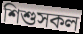
শিশুসকল